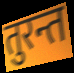
तुरन्त